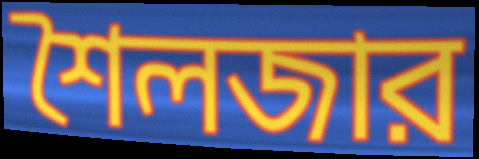
শৈলজার